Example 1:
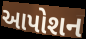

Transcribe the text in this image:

આપોશન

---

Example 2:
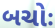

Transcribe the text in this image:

બચોઃ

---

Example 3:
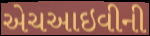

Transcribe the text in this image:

એચઆઇવીની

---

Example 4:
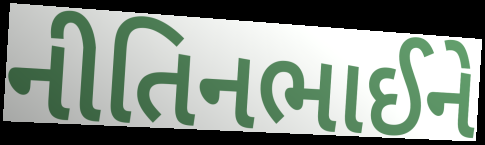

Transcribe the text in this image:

નીતિનભાઈને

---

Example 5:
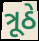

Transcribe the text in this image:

ત્રૂઠે